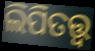
ଲିପିତତ୍ତ୍ୱ